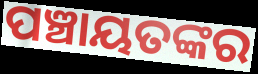
ପଞ୍ଚାୟତଙ୍କର